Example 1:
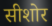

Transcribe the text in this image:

सीशोर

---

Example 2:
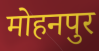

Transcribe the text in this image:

मोहनपुर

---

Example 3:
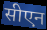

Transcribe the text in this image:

सीएन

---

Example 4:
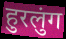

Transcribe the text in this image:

हुरलुंग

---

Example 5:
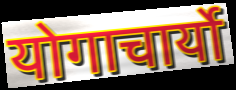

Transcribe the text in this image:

योगाचार्यो